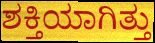
ಶಕ್ತಿಯಾಗಿತ್ತು